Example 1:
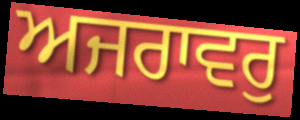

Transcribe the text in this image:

ਅਜਰਾਵਰੁ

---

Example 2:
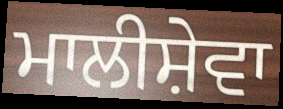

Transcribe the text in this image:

ਮਾਲੀਸ਼ੇਵਾ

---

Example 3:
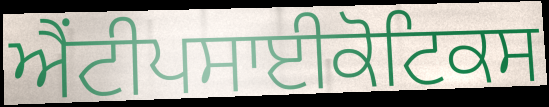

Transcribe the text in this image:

ਐਂਟੀਪਸਾਈਕੋਟਿਕਸ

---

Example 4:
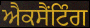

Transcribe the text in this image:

ਐਕਸੈਂਟਿੰਗ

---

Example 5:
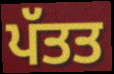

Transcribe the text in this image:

ਪੱਤਤ